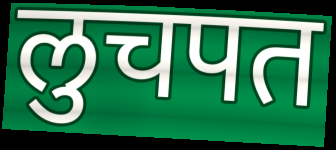
लुचपत